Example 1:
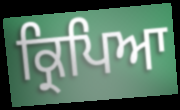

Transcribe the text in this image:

ਕ੍ਰਿਪਿਆ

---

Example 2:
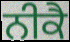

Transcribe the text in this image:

ਨੀਕੈ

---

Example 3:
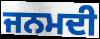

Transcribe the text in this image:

ਜਨਮਦੀ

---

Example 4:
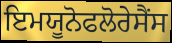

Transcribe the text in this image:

ਇਮਯੂਨੋਫਲੋਰੇਸੈਂਸ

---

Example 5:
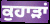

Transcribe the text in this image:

ਕੁਹਾੜਾਂ